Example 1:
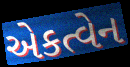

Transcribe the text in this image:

એકત્વેન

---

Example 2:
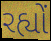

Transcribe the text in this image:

રહ્યોં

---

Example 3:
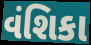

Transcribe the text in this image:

વંશિકા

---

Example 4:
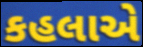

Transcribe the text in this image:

કહલાએ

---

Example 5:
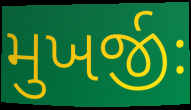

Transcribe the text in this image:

મુખર્જીઃ